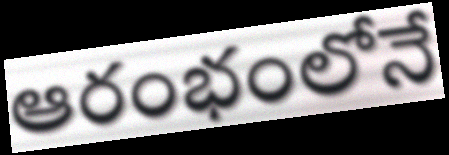
ఆరంభంలోనే